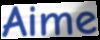
Aime